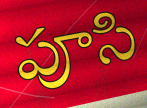
పూసి